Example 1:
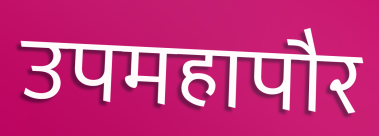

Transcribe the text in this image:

उपमहापौर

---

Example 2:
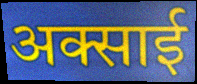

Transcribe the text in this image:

अक्साई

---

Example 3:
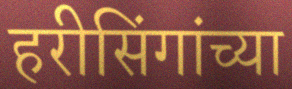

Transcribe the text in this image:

हरीसिंगांच्या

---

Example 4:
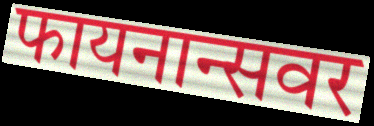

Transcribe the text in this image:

फायनान्सवर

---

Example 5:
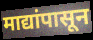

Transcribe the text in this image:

माद्यांपासून